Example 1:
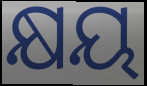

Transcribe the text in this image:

କ୍ଷୟ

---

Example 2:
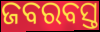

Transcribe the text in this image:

ଜବରବସ୍ତ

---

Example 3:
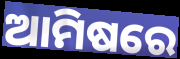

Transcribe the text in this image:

ଆମିଷରେ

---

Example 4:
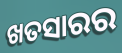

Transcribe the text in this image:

ଖତସାରର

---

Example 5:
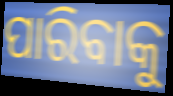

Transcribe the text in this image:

ପାରିବାକୁ